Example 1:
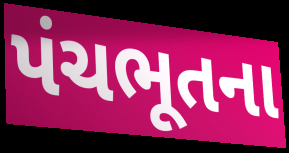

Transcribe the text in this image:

પંચભૂતના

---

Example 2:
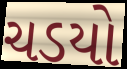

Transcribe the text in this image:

ચડયો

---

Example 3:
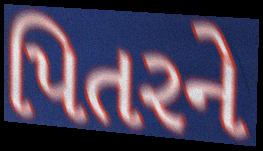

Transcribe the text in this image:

પિતરને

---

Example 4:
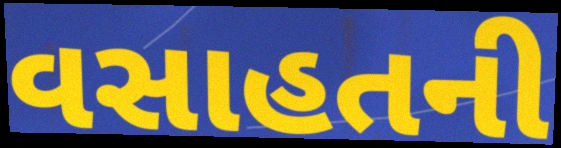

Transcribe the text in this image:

વસાહતની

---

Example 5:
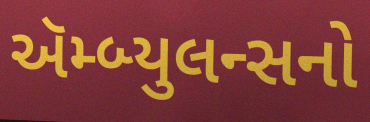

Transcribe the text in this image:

ઍમ્બ્યુલન્સનો